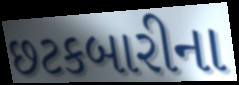
છટકબારીના